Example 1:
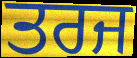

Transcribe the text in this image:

ਤਰਜ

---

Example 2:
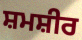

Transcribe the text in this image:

ਸ਼ਮਸ਼ੀਰ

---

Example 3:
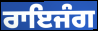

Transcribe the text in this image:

ਰਾਇਜੰਗ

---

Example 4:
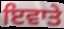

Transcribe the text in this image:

ਇਵਾਤੇ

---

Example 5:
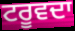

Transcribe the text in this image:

ਟਰੂਵਦਾ